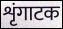
शृंगाटक